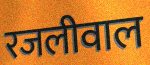
रजलीवाल